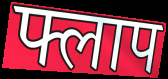
फ्लाप